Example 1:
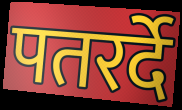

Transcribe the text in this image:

पतरर्दे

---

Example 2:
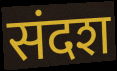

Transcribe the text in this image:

संदश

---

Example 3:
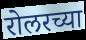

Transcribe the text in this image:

रोलरच्या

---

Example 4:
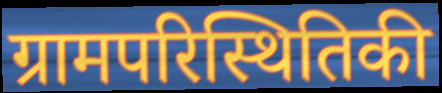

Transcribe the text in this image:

ग्रामपरिस्थितिकी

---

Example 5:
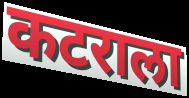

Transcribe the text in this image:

कटराला